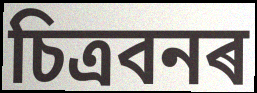
চিত্ৰবনৰ